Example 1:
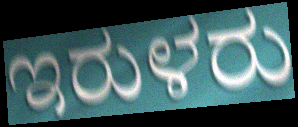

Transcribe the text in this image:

ಇರುಳರು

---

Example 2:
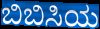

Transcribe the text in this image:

ಬಿಬಿಸಿಯ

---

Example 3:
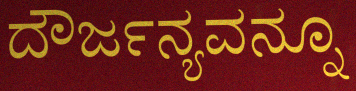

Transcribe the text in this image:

ದೌರ್ಜನ್ಯವನ್ನೂ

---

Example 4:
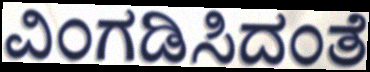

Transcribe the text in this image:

ವಿಂಗಡಿಸಿದಂತೆ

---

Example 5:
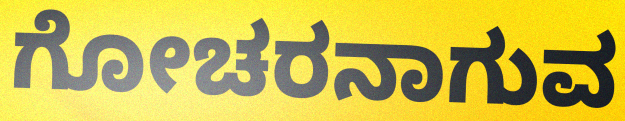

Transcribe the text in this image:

ಗೋಚರನಾಗುವ